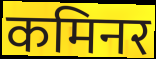
कमिनर